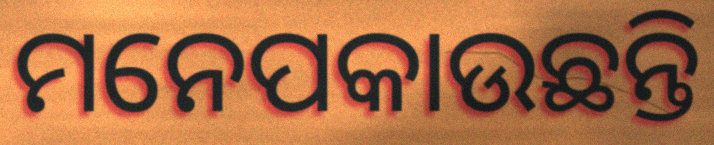
ମନେପକାଉଛନ୍ତି